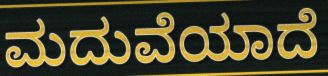
ಮದುವೆಯಾದೆ